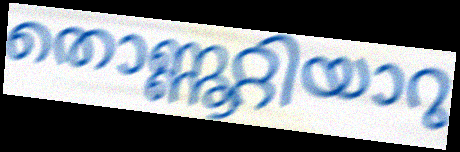
തൊണ്ണൂറ്റിയാറു